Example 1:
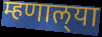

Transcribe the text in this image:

म्हणाल्या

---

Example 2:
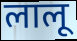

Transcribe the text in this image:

लालू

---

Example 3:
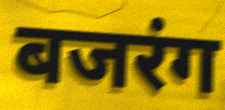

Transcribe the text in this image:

बजरंग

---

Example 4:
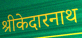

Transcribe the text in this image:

श्रीकेदारनाथ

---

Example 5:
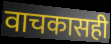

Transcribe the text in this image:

वाचकासही